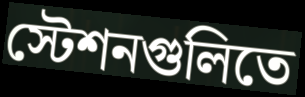
স্টেশনগুলিতে